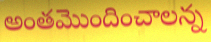
అంతమొందించాలన్న